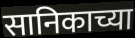
सानिकाच्या